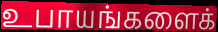
உபாயங்களைக்